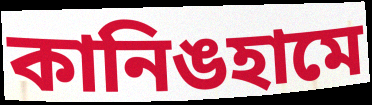
কানিঙহামে